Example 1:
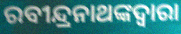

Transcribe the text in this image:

ରବୀନ୍ଦ୍ରନାଥଙ୍କଦ୍ୱାରା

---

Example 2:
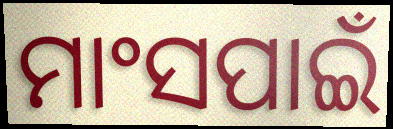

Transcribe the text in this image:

ମାଂସପାଇଁ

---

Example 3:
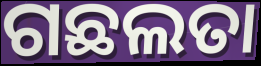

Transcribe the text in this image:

ଗଛଲତା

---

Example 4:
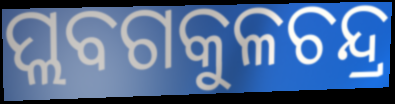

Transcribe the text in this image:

ପ୍ଲବଗକୁଳଚନ୍ଦ୍ର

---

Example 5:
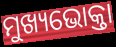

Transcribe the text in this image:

ମୁଖ୍ୟଭୋକ୍ତା